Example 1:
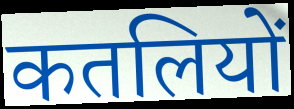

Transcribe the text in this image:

कतलियों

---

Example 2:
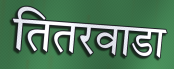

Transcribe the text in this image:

तितरवाडा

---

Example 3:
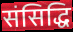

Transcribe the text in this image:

संसिद्धि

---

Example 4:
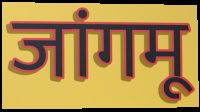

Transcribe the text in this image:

जांगमू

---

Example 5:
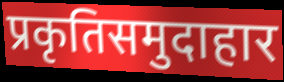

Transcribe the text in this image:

प्रकृतिसमुदाहार